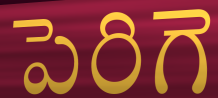
పెరిగె